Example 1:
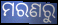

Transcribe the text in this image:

ମରଣରୁ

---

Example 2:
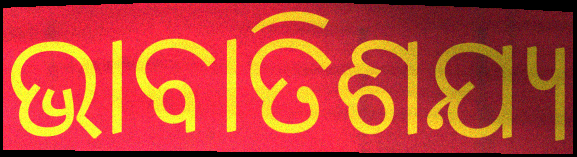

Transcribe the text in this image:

ଭାବାତିଶଯ୍ୟ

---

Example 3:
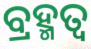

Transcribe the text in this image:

ବ୍ରହ୍ମତ୍ୱ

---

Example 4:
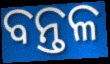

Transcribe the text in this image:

ବନ୍ତଳ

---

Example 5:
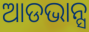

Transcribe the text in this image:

ଆଡଭାନ୍ସ